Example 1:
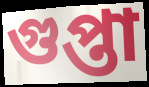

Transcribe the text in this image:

গুপ্তা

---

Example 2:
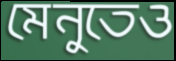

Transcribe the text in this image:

মেনুতেও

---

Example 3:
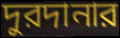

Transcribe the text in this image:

দুরদানার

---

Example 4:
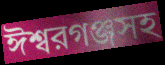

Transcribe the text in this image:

ঈশ্বরগঞ্জসহ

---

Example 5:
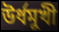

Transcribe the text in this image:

উর্ধমুখী